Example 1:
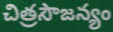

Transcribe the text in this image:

చిత్రసౌజన్యం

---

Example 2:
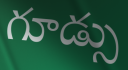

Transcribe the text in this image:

గూడ్సు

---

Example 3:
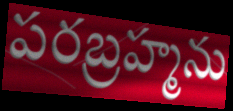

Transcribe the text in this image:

పరబ్రహ్మను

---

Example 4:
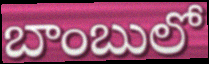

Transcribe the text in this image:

బాంబులో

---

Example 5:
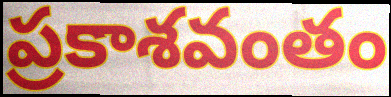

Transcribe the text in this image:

ప్రకాశవంతం